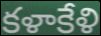
కళాకేళి